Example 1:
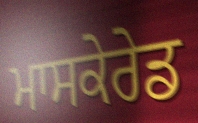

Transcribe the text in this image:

ਮਾਸਕੇਰੇਡ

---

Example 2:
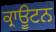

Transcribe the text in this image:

ਕ੍ਰਾਊਟਨ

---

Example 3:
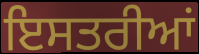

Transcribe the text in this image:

ਇਸਤਰੀਆਂ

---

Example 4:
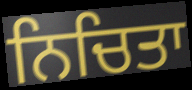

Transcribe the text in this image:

ਨਿਚਿਤਾ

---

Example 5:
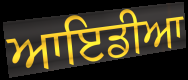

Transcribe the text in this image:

ਆਇਡੀਆ